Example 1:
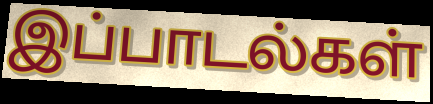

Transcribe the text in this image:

இப்பாடல்கள்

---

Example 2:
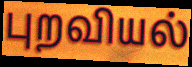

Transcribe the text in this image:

புறவியல்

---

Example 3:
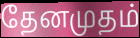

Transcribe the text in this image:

தேனமுதம்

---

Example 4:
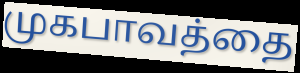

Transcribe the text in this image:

முகபாவத்தை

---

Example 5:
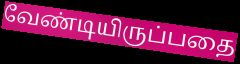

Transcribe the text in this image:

வேண்டியிருப்பதை